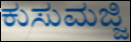
ಕುಸುಮಜ್ಜಿ